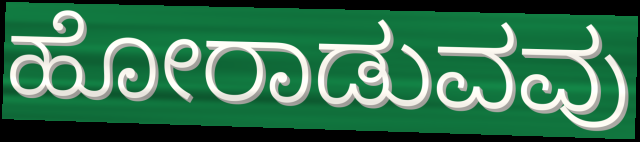
ಹೋರಾಡುವವು